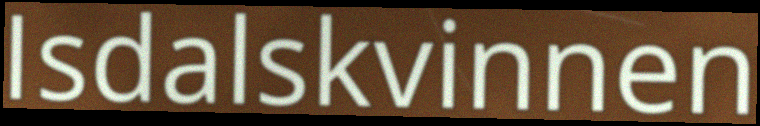
Isdalskvinnen